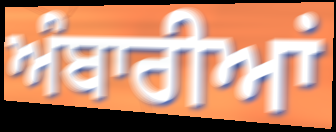
ਅੰਬਾਰੀਆਂ